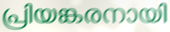
പ്രിയങ്കരനായി